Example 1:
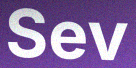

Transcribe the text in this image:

Sev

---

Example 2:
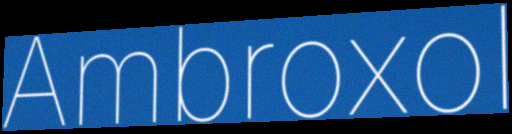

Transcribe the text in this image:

Ambroxol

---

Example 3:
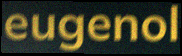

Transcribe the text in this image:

eugenol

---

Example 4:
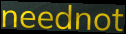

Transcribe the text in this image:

neednot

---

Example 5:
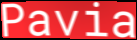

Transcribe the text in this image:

Pavia